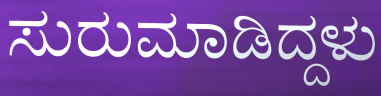
ಸುರುಮಾಡಿದ್ದಳು